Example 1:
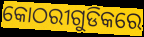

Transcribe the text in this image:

କୋଠରୀଗୁଡିକରେ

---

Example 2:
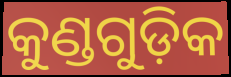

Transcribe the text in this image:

କୁଣ୍ଡଗୁଡ଼ିକ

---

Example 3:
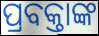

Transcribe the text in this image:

ପ୍ରବକ୍ତାଙ୍କ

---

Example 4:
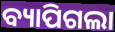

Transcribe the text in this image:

ବ୍ୟାପିଗଲା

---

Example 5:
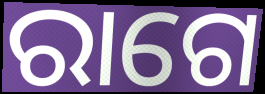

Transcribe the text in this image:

ରାଗେ